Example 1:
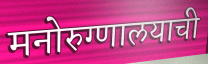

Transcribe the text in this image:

मनोरुग्णालयाची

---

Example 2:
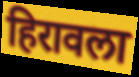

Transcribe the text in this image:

हिरावला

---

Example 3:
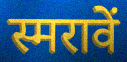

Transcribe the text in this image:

स्मरावें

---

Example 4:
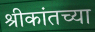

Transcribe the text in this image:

श्रीकांतच्या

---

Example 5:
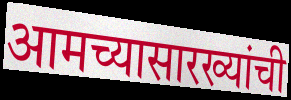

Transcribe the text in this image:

आमच्यासारख्यांची